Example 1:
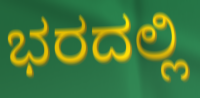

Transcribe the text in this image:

ಭರದಲ್ಲಿ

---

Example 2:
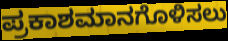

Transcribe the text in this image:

ಪ್ರಕಾಶಮಾನಗೊಳಿಸಲು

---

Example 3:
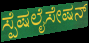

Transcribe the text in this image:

ಸ್ಪೆಷಲೈಸೇಷನ್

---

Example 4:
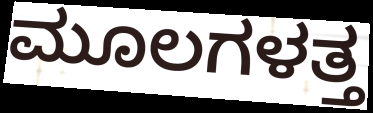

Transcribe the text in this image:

ಮೂಲಗಳತ್ತ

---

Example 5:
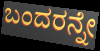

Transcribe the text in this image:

ಬಂದರನ್ನೇ